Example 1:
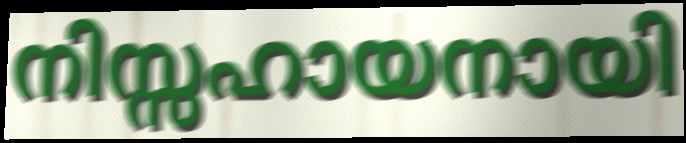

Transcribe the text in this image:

നിസ്സഹായനായി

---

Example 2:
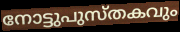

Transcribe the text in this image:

നോട്ടുപുസ്തകവും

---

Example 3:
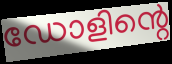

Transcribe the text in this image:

ഡോളിന്റെ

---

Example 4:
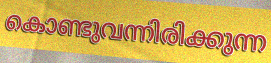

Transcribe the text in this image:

കൊണ്ടുവന്നിരിക്കുന്ന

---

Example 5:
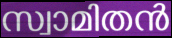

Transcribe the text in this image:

സ്വാമിതൻ